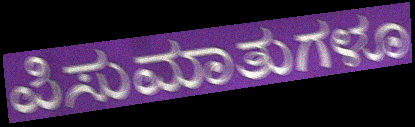
ಪಿಸುಮಾತುಗಳೂ